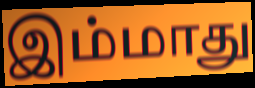
இம்மாது